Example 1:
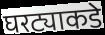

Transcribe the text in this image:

घरट्याकडे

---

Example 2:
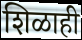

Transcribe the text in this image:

शिळाही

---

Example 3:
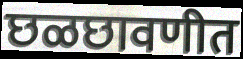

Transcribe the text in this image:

छळछावणीत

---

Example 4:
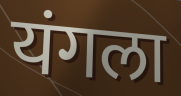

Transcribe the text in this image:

यंगला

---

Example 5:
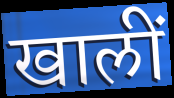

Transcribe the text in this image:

खालीं